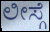
ಲೀಸ್ಗೆ